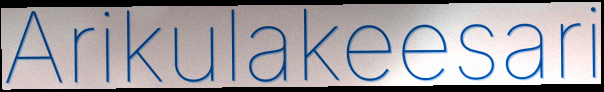
Arikulakeesari